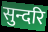
सुन्दरि